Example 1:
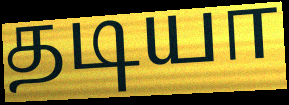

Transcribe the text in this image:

தடியா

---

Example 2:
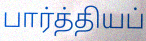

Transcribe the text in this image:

பார்த்தியப்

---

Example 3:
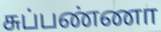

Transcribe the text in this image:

சுப்பண்ணா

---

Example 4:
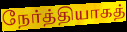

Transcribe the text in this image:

நேர்த்தியாகத்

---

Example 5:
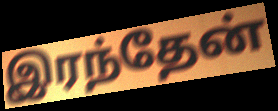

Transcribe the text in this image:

இரந்தேன்